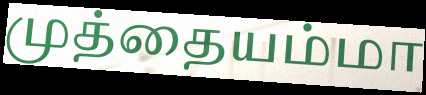
முத்தையம்மா